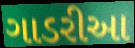
ગાડરીઆ